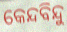
କେନ୍ଦବିନ୍ଦୁ